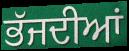
ਭੱਜਦੀਆਂ